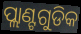
ପ୍ଲାଣ୍ଟଗୁଡିକ